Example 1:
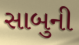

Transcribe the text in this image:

સાબુની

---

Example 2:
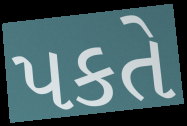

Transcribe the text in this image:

પકતે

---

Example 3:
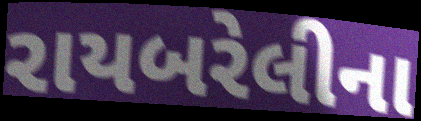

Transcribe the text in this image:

રાયબરેલીના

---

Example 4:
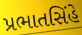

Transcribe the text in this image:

પ્રભાતસિંહે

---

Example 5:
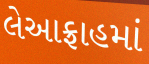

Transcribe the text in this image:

લેઆફ્રાહમાં